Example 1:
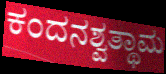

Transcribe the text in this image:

ಕಂದನಶ್ವತ್ಥಾಮ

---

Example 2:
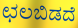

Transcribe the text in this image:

ಛಲಬಿಡದೆ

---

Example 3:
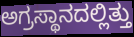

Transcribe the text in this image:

ಅಗ್ರಸ್ಥಾನದಲ್ಲಿತ್ತು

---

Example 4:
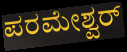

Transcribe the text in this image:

ಪರಮೇಶ್ವರ್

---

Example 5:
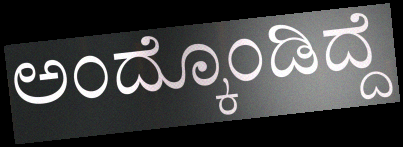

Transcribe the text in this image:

ಅಂದ್ಕೊಂಡಿದ್ದೆ